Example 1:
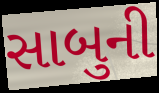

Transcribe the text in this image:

સાબુની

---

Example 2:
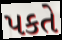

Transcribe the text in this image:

પકતે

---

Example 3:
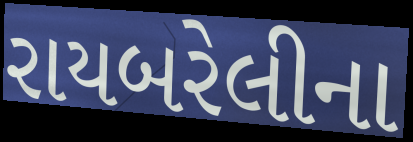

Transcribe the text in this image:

રાયબરેલીના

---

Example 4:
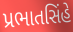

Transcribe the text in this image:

પ્રભાતસિંહે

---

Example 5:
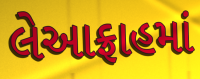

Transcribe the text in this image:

લેઆફ્રાહમાં